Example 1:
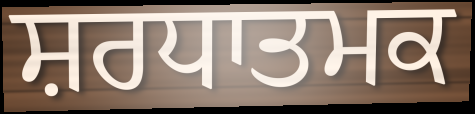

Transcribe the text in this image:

ਸ਼ਰਧਾਤਮਕ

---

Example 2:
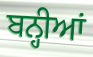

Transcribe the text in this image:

ਬਨ੍ਹੀਆਂ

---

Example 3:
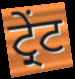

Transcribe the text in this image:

ਟ੍ਰੇਂਟ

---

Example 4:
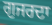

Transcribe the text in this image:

ਗੁਜਰਦਾ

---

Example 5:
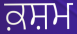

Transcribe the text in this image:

ਕ਼ਸ਼ਮ